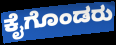
ಕೈಗೊಂಡರು